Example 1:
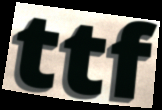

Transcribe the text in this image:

ttf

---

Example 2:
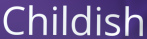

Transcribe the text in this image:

Childish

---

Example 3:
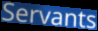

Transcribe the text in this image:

Servants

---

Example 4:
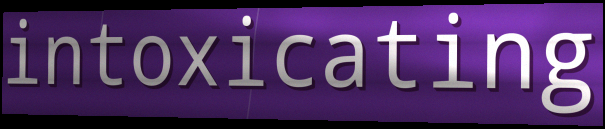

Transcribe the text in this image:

intoxicating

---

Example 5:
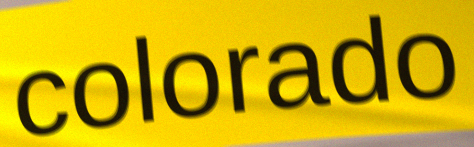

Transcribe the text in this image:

colorado